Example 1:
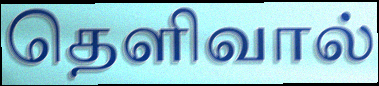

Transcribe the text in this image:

தெளிவால்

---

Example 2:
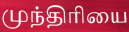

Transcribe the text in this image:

முந்திரியை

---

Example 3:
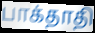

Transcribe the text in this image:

பாக்தாதி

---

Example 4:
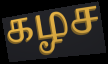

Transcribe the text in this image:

கழச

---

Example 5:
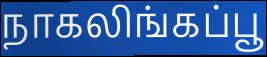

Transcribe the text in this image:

நாகலிங்கப்பூ